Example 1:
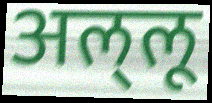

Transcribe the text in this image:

अल्लू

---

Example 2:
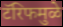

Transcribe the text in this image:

टॅरिफमुळे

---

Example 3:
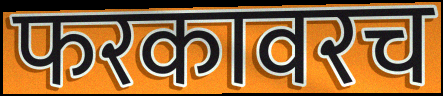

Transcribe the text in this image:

फरकावरच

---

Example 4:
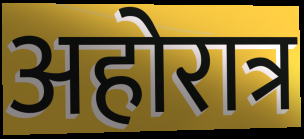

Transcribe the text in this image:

अहोरात्र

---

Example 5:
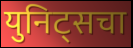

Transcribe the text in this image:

युनिट्सचा